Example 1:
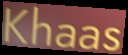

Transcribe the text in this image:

Khaas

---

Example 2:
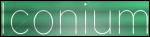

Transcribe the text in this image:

Iconium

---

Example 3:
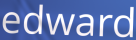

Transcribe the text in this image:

edward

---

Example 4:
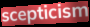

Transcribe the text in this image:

scepticism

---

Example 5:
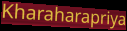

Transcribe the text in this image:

Kharaharapriya